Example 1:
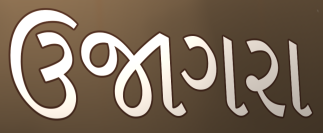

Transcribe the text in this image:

ઉજાગરા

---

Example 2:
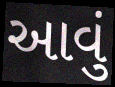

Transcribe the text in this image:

આવું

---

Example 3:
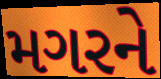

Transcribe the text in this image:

મગરને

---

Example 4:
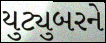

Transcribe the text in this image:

યુટ્યુબરને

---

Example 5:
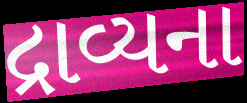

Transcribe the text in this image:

દ્રાવ્યના